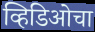
व्हिडिओचा